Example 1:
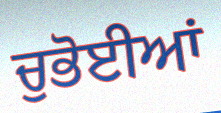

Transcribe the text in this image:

ਚੁਭੋਈਆਂ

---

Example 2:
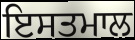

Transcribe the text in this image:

ਇਸਤਮਾਲ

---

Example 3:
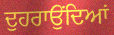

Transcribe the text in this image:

ਦੁਹਰਾਉਂਦਿਆਂ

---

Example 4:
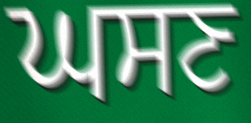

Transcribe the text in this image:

ਘਸਣ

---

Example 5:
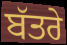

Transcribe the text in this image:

ਬੱਤਰੇ